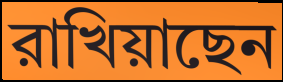
রাখিয়াছেন